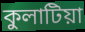
কুলাটিয়া